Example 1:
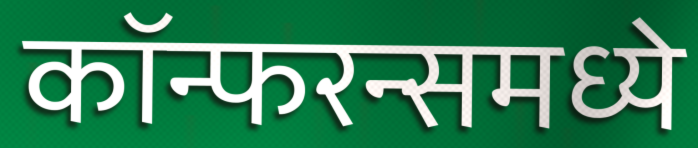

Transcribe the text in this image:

कॉन्फरन्समध्ये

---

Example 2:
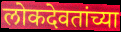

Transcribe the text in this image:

लोकदेवतांच्या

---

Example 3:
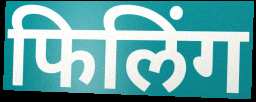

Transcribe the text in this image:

फिलिंग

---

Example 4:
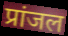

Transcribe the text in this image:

प्रांजल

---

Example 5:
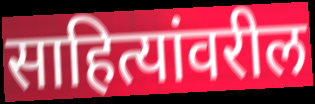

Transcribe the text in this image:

साहित्यांवरील